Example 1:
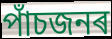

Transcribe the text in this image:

পাঁচজনৰ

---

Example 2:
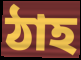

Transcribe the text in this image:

ঠাহ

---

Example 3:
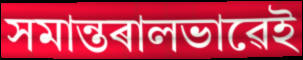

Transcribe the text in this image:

সমান্তৰালভাৱেই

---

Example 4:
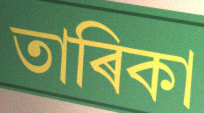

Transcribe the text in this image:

তাৰিকা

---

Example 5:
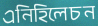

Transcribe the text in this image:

এনিহিলেচন